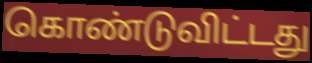
கொண்டுவிட்டது